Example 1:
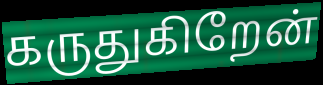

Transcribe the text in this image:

கருதுகிறேன்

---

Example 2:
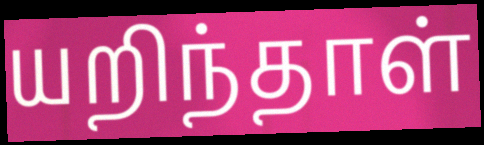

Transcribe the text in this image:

யறிந்தாள்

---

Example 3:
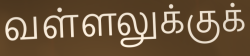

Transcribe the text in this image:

வள்ளலுக்குக்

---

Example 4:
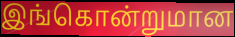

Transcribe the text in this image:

இங்கொன்றுமான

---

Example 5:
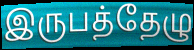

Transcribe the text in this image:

இருபத்தேழு